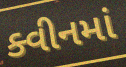
ક્વીનમાં